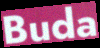
Buda